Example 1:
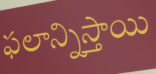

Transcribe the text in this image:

ఫలాన్నిస్తాయి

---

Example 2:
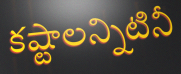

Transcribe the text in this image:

కష్టాలన్నిటినీ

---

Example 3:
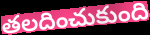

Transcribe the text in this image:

తలదించుకుంది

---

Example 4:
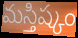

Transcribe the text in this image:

మస్తిష్కం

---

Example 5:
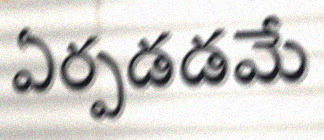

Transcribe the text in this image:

ఏర్పడడమే